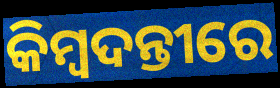
କିମ୍ବଦନ୍ତୀରେ